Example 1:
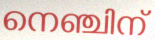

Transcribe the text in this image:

നെഞ്ചിന്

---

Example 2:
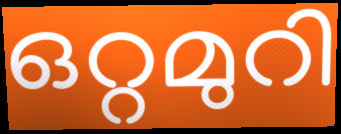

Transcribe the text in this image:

ഒറ്റമുറി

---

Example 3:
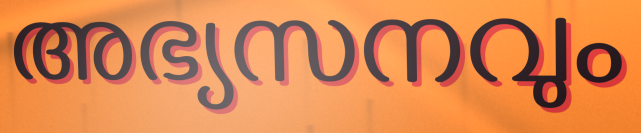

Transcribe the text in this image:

അഭ്യസനവും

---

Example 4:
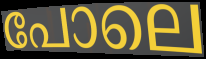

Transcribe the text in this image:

പോലെ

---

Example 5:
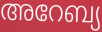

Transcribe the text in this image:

അറേബ്യ